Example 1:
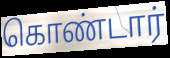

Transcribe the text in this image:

கொண்டார்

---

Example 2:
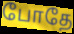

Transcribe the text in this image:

போதே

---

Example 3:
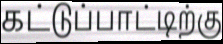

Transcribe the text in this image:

கட்டுப்பாட்டிற்கு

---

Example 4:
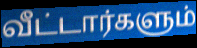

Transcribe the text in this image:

வீட்டார்களும்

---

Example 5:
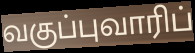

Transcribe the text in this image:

வகுப்புவாரிப்